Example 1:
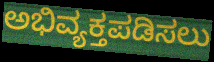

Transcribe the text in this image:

ಅಭಿವ್ಯಕ್ತಪಡಿಸಲು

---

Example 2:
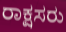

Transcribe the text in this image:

ರಾಕ್ಷಸರು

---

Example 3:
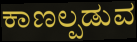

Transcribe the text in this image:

ಕಾಣಲ್ಪಡುವ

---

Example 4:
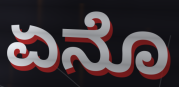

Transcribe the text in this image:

ಏನೊ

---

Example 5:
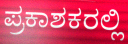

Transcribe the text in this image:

ಪ್ರಕಾಶಕರಲ್ಲಿ